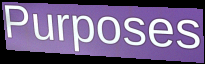
Purposes